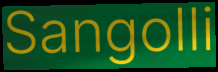
Sangolli